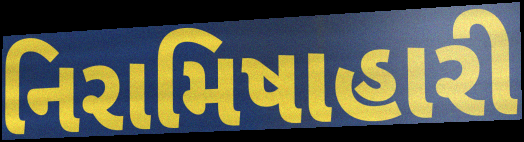
નિરામિષાહારી